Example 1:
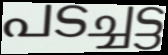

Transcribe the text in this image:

പടച്ചട്ട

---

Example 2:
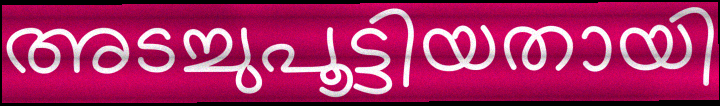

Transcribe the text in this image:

അടച്ചുപൂട്ടിയതായി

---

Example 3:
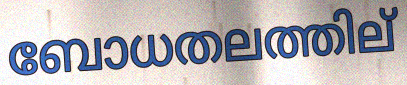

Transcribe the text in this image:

ബോധതലത്തില്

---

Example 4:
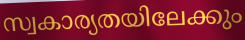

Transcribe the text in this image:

സ്വകാര്യതയിലേക്കും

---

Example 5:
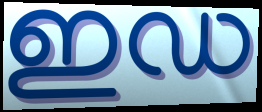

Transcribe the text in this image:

ഇഡ